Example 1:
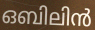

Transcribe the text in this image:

ഒബിലിൻ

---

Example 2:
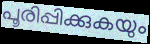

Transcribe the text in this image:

പൂരിപ്പിക്കുകയും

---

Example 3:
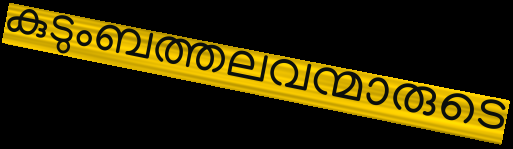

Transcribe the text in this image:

കുടുംബത്തലവന്മാരുടെ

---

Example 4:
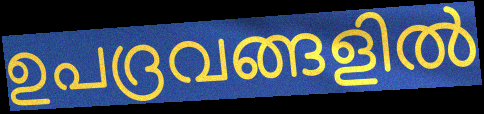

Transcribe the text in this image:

ഉപദ്രവങ്ങളിൽ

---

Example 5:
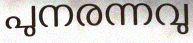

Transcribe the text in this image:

പുനരന്നവു